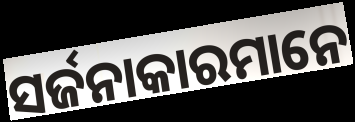
ସର୍ଜନାକାରମାନେ